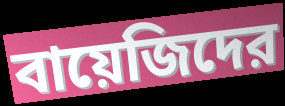
বায়েজিদের